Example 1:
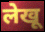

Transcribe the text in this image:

लेखू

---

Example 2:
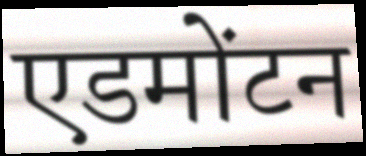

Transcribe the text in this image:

एडमोंटन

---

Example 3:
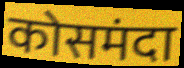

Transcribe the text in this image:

कोसमंदा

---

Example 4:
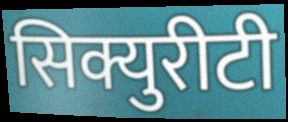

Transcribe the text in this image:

सिक्युरीटी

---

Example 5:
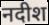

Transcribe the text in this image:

नदीश